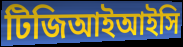
টিজিআইআইসি